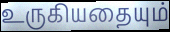
உருகியதையும்